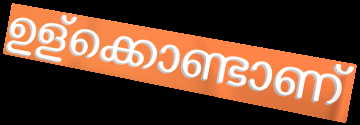
ഉള്ക്കൊണ്ടാണ്